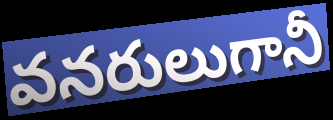
వనరులుగానీ